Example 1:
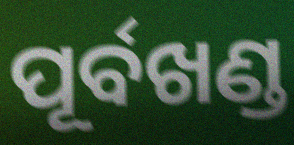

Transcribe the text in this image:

ପୂର୍ବଖଣ୍ଡ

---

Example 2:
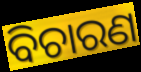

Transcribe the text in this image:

ବିଚାରଣ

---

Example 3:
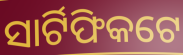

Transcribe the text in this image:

ସାର୍ଟିଫିକଟେ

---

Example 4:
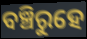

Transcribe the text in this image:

ବଞ୍ଚିରୁହେ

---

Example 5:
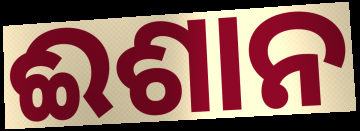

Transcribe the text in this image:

ଈଶାନ